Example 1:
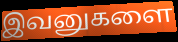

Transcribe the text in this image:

இவனுகளை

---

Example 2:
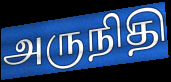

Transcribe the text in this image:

அருநிதி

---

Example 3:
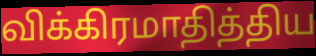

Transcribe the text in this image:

விக்கிரமாதித்திய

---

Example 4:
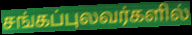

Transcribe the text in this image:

சங்கப்புலவர்களில்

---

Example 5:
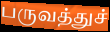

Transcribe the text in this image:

பருவத்துச்